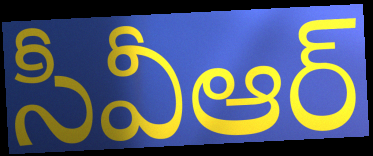
సీవీఆర్